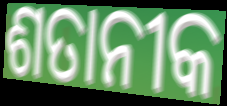
ଶତାନୀକ